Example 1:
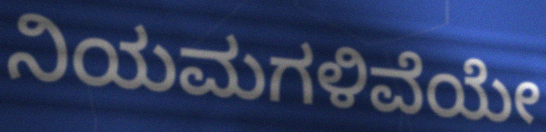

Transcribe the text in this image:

ನಿಯಮಗಳಿವೆಯೇ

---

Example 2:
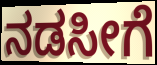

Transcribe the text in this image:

ನಡಸೀಗೆ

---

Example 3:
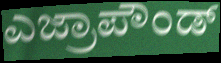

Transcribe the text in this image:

ಎಜ್ರಾಪೌಂಡ್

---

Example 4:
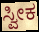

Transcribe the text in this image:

ಸ್ವೀಕ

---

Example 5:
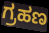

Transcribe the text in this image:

ಗ್ರಹಣ